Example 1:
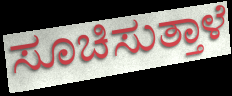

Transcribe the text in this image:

ಸೂಚಿಸುತ್ತಾಳೆ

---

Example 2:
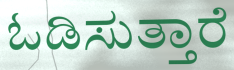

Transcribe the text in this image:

ಓಡಿಸುತ್ತಾರೆ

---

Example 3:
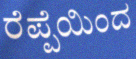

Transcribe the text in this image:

ರೆಪ್ಪೆಯಿಂದ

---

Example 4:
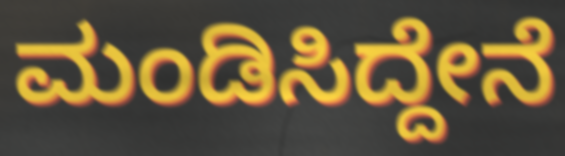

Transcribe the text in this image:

ಮಂಡಿಸಿದ್ದೇನೆ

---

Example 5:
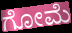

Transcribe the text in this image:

ಗೋಮೆ